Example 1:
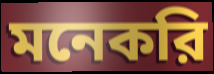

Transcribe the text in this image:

মনেকরি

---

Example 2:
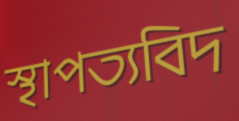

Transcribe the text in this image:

স্থাপত্যবিদ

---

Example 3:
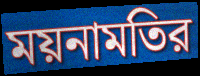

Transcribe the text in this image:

ময়নামতির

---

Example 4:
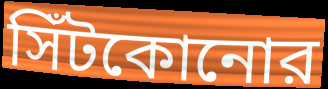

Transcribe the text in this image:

সিঁটকোনোর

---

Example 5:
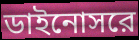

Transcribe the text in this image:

ডাইনোসরে